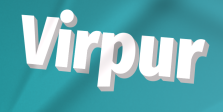
Virpur